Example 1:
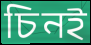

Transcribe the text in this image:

চিনই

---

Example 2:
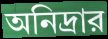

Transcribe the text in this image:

অনিদ্রার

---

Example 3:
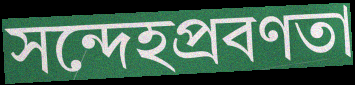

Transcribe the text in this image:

সন্দেহপ্রবণতা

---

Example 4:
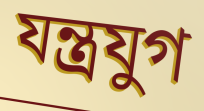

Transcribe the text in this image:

যন্ত্রযুগ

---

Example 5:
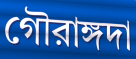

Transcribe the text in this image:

গৌরাঙ্গদা